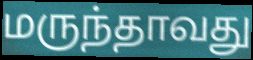
மருந்தாவது